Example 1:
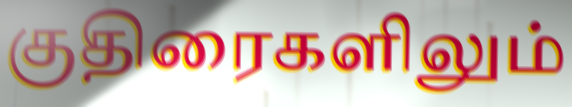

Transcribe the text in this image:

குதிரைகளிலும்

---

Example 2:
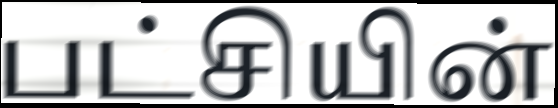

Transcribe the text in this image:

பட்சியின்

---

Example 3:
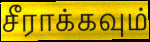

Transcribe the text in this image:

சீராக்கவும்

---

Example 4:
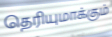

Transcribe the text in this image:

தெரியுமாக்கும்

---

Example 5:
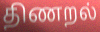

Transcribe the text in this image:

திணறல்